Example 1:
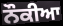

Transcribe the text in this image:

ਨੌਕੀਆ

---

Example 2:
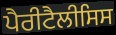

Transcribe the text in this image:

ਪੈਰੀਟੈਲੀਸਿਸ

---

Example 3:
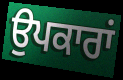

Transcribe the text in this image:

ਉਪਕਾਰਾਂ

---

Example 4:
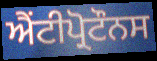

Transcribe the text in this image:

ਐਂਟੀਪ੍ਰੋਟੌਨਸ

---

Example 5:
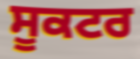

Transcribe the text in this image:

ਸੂਕਟਰ